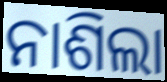
ନାଶିଲା